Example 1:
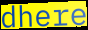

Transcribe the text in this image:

dhere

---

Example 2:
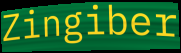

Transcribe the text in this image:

Zingiber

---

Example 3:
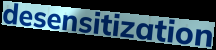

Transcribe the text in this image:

desensitization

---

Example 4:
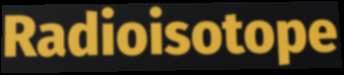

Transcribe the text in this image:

Radioisotope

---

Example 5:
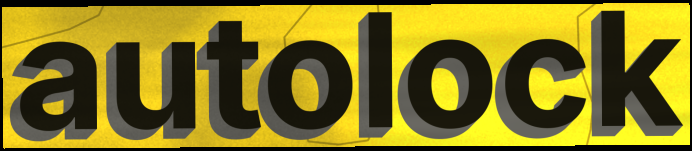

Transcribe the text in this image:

autolock